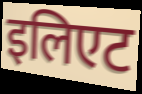
इलिएट